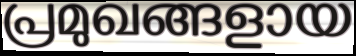
പ്രമുഖങ്ങളായ